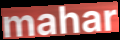
mahar